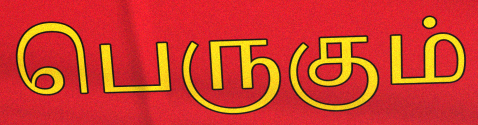
பெருகும்